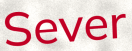
Sever